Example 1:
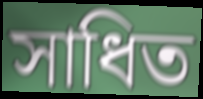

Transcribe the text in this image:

সাধিত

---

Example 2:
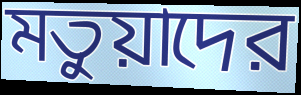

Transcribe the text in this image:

মতুয়াদের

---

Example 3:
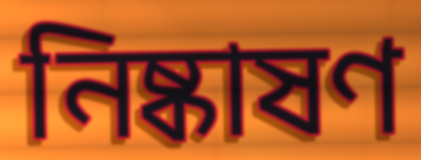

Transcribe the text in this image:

নিষ্কাষণ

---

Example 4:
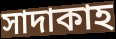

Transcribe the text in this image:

সাদাকাহ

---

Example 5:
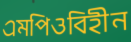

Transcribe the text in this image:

এমপিওবিহীন